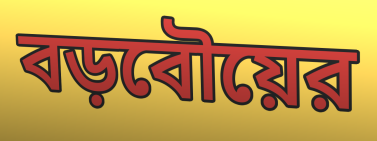
বড়বৌয়ের